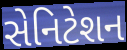
સેનિટેશન